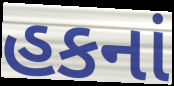
હકનાં